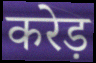
करेड़